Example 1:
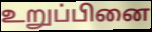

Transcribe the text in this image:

உறுப்பினை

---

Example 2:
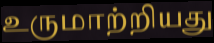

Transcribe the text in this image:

உருமாற்றியது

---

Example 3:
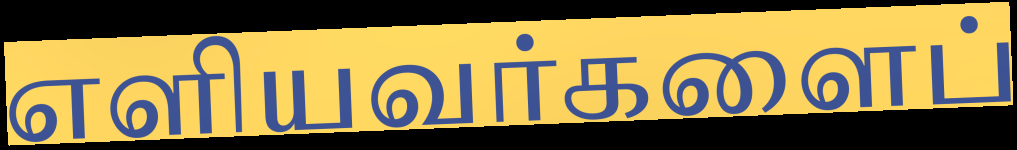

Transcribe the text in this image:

எளியவர்களைப்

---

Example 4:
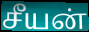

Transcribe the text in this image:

சீயன்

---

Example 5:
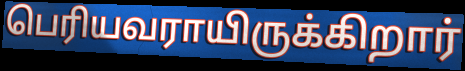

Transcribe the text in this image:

பெரியவராயிருக்கிறார்